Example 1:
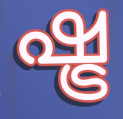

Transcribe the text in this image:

ഷ്ട്ര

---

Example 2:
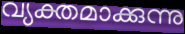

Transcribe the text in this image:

വ്യക്തമാക്കുന്നു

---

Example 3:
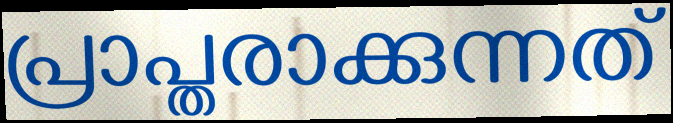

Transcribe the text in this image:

പ്രാപ്തരാക്കുന്നത്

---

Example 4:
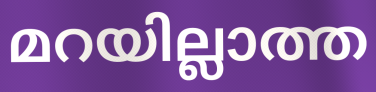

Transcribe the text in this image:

മറയില്ലാത്ത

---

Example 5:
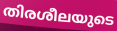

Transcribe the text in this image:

തിരശീലയുടെ